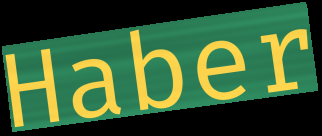
Haber